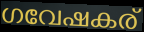
ഗവേഷകര്